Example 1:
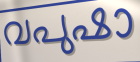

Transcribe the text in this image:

വപുഷാ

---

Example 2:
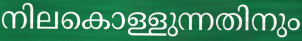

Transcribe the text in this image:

നിലകൊള്ളുന്നതിനും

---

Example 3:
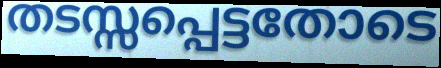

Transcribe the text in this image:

തടസ്സപ്പെട്ടതോടെ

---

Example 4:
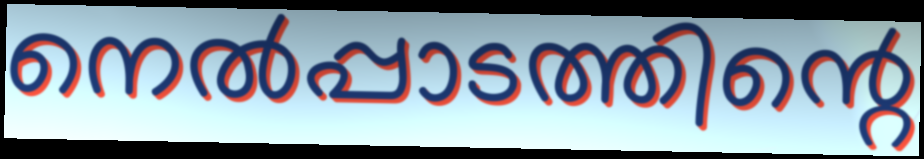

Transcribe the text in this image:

നെൽപ്പാടത്തിന്റെ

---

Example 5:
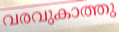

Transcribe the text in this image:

വരവുകാത്തു